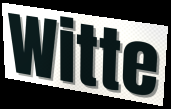
Witte